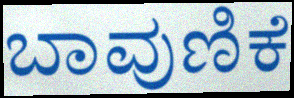
ಬಾವುಣಿಕೆ